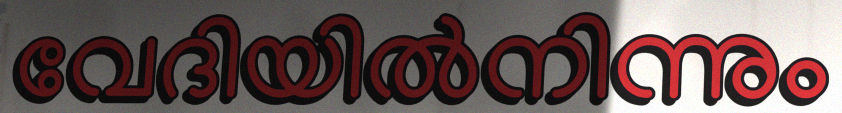
വേദിയിൽനിന്നും